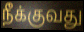
நீக்குவது